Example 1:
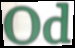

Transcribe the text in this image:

Od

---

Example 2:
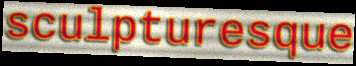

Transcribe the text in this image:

sculpturesque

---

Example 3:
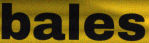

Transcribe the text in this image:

bales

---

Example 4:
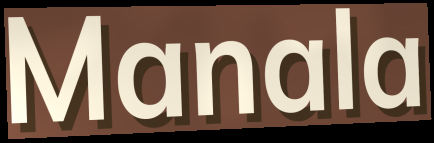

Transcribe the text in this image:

Manala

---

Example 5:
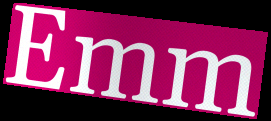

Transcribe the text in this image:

Emm